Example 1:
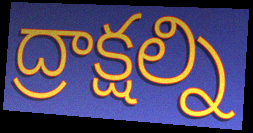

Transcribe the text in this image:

ద్రాక్షల్ని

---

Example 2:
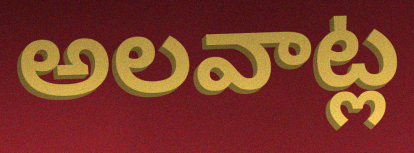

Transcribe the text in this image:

అలవాట్ల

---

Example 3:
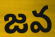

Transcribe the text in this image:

జవ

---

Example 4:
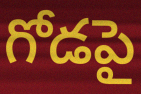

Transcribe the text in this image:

గోడపై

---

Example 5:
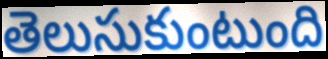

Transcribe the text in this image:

తెలుసుకుంటుంది